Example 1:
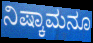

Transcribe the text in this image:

ನಿಷ್ಕಾಮನೂ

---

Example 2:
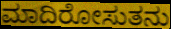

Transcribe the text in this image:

ಮಾದಿರೋಸುತನು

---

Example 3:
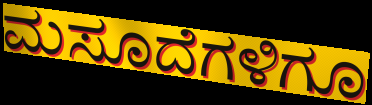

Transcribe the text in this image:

ಮಸೂದೆಗಳಿಗೂ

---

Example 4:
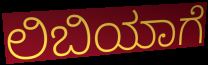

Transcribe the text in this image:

ಲಿಬಿಯಾಗೆ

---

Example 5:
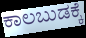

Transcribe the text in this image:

ಕಾಲಬುಡಕ್ಕೆ